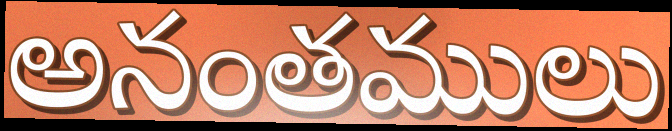
అనంతములు